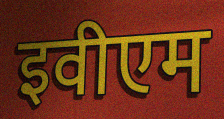
इवीएम